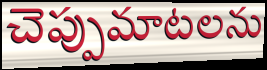
చెప్పుమాటలను